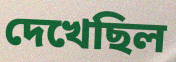
দেখেছিল